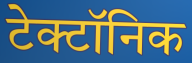
टेक्टॉनिक